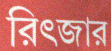
রিৎজার